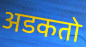
अडकतो